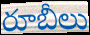
రూబీలు